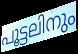
പൂട്ടലിനും